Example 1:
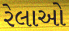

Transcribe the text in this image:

રેલાઓ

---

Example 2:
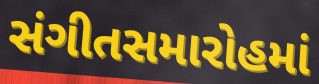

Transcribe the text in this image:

સંગીતસમારોહમાં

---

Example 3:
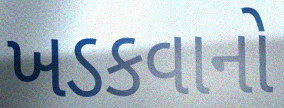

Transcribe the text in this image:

ખડકવાનો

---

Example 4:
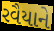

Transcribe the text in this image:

રવૈયાને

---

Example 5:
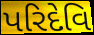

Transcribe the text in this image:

પરિદેવિ